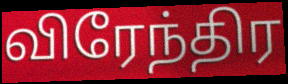
விரேந்திர